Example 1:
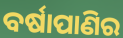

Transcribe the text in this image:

ବର୍ଷାପାଣିର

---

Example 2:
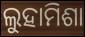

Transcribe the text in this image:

ଲୁହାମିଶା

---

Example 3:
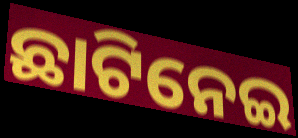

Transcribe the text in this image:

ଛାଟିନେଇ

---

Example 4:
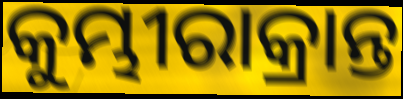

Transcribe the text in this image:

କୁମ୍ଭୀରାକ୍ରାନ୍ତ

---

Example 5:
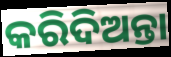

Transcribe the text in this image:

କରିଦିଅନ୍ତା